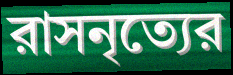
রাসনৃত্যের